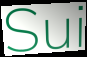
Sui